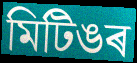
মিটিঙৰ